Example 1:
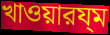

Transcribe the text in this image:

খাওয়ারয্ম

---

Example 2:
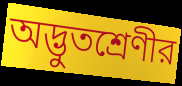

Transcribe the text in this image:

অদ্ভুতশ্রেণীর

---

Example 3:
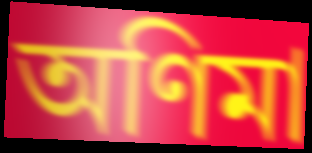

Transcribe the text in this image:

অণিমা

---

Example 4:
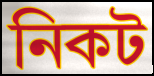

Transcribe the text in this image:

নিকট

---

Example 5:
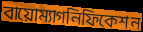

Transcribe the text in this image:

বায়োম্যাগনিফিকেশন